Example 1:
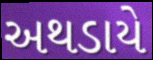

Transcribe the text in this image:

અથડાયે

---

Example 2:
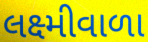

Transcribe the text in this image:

લક્ષ્મીવાળા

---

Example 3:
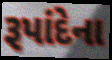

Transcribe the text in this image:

રૂપાંદેના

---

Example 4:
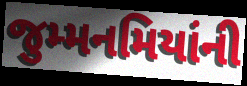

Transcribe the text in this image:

જુમ્મનમિયાંની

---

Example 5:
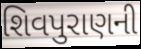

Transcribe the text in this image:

શિવપુરાણની